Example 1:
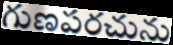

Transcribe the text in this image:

గుణపరచును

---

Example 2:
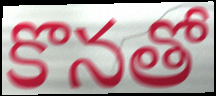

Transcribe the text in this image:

కొనతో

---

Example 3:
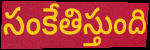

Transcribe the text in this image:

సంకేతిస్తుంది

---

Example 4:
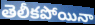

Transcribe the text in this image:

తెలీకపోయినా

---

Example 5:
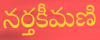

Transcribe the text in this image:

నర్తకీమణి